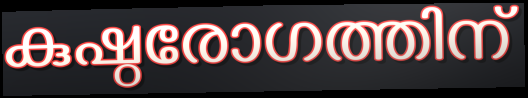
കുഷ്ഠരോഗത്തിന്